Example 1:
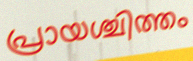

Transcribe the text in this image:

പ്രായശ്ചിത്തം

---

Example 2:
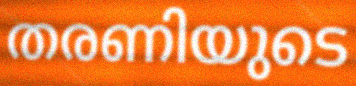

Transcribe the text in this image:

തരണിയുടെ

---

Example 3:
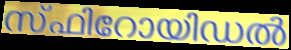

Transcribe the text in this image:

സ്ഫിറോയിഡൽ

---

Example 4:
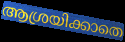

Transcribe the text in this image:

ആശ്രയിക്കാതെ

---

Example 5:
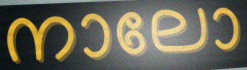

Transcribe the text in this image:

നാലോ